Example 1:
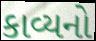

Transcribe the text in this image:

કાવ્યનો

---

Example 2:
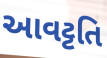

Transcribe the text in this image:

આવટ્ટતિ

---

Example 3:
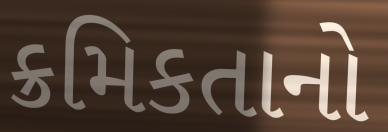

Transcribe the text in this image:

ક્રમિકતાનો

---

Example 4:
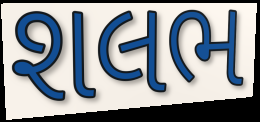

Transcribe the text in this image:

શલભ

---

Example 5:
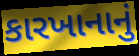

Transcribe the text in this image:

કારખાનાનું